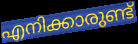
എനിക്കാരുണ്ട്